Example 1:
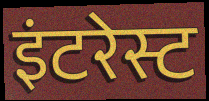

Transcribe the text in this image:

इंटरेस्ट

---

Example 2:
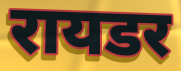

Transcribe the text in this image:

रायडर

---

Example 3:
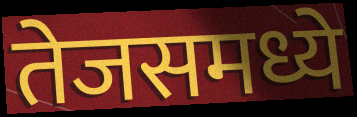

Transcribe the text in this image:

तेजसमध्ये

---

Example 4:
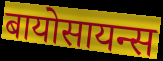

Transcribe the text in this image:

बायोसायन्स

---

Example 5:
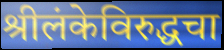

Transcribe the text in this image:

श्रीलंकेविरुद्धचा